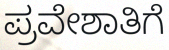
ಪ್ರವೇಶಾತಿಗೆ